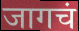
जागचं